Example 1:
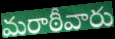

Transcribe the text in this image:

మరాఠీవారు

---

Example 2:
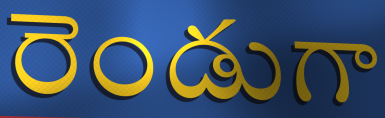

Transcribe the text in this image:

రెండుగా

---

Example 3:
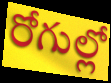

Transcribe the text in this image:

రోగుల్లో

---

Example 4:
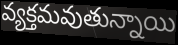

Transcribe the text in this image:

వ్యక్తమవుతున్నాయి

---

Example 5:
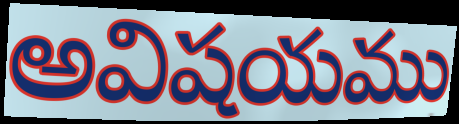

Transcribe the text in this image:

అవిషయము